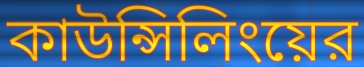
কাউন্সিলিংয়ের